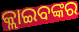
କ୍ଲାଇବଙ୍କର